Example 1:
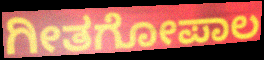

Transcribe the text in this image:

ಗೀತಗೋಪಾಲ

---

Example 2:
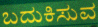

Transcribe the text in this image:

ಬದುಕಿಸುವ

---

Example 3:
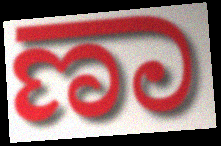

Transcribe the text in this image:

ಣಾ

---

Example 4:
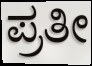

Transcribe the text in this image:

ಪ್ರತೀ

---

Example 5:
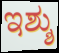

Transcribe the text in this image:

ಇಶ್ಶು